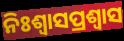
ନିଃଶ୍ୱାସପ୍ରଶ୍ୱାସ